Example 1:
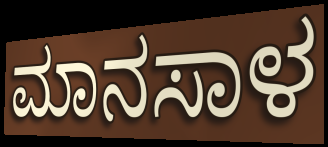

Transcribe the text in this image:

ಮಾನಸಾಳ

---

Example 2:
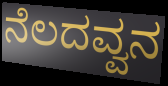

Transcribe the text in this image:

ನೆಲದವ್ವನ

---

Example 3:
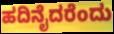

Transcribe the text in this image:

ಹದಿನೈದರೆಂದು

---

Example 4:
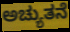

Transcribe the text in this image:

ಅಚ್ಯುತನೆ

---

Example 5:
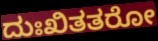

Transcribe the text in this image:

ದುಃಖಿತತರೋ